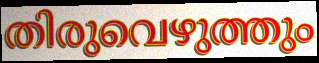
തിരുവെഴുത്തും